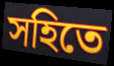
সহিতে